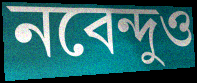
নবেন্দুও